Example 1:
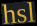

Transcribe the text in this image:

hsl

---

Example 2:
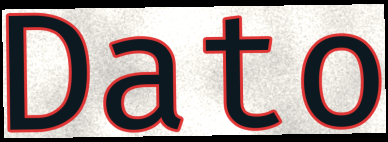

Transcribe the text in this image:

Dato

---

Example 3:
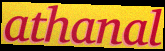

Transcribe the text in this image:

athanal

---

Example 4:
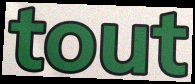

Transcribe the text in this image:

tout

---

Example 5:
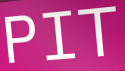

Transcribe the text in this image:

PIT